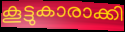
കൂട്ടുകാരാക്കി